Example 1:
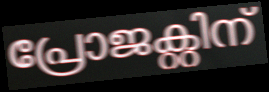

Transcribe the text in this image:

പ്രോജക്റ്റിന്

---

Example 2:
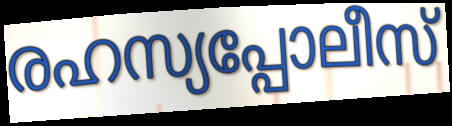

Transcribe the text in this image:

രഹസ്യപ്പോലീസ്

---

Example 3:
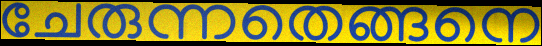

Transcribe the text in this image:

ചേരുന്നതെങ്ങനെ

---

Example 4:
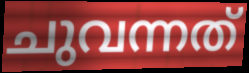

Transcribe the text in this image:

ചുവന്നത്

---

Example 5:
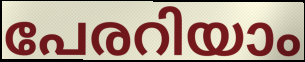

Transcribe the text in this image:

പേരറിയാം